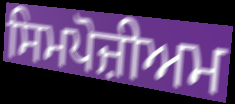
ਸਿਮਪੋਜ਼ੀਅਮ